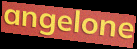
angelone